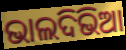
ଭାଲଦିଭିଆ